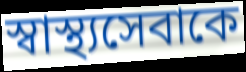
স্বাস্থ্যসেবাকে